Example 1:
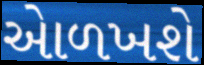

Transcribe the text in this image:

એાળખશે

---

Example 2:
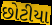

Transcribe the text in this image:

છોટીયા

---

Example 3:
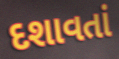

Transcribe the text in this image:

દશાવતાં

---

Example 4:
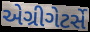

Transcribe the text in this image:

એગ્રીગેટર્સે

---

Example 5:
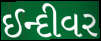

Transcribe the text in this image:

ઈન્દીવર